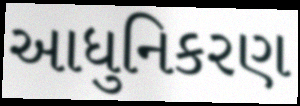
આધુનિકરણ